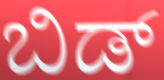
ಬಿಡ್